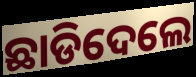
ଛାଡିଦେଲେ